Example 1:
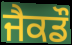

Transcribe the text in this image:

ਜੈਕਡੌ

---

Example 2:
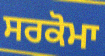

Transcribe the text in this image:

ਸਰਕੋਮਾ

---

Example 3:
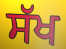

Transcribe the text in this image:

ਸੱਖ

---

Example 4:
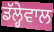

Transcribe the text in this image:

ਡੱਲ੍ਹੇਵਾਲ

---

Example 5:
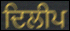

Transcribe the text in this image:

ਦਿਲੀਪ